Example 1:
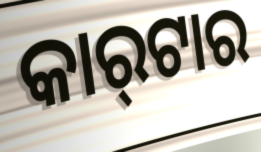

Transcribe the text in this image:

କାର୍‍ଟାର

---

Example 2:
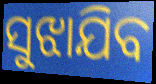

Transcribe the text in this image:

ସୁଝାଯିବ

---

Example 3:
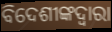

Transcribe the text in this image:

ବିଦେଶୀଙ୍କଦ୍ୱାରା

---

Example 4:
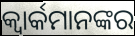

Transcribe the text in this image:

କ୍ୱାର୍କମାନଙ୍କର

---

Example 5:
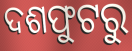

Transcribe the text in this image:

ଦଶଫୁଟରୁ